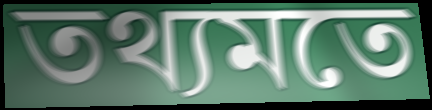
তথ্যমতে